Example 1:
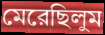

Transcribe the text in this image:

মেরেছিলুম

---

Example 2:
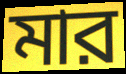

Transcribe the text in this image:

মার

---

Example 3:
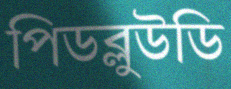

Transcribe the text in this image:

পিডব্লুউডি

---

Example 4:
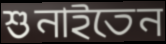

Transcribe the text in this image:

শুনাইতেন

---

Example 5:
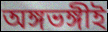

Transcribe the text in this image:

অঙ্গভঙ্গীই